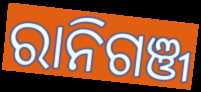
ରାନିଗଞ୍ଜ